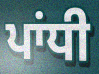
ਪਾਂਧੀ